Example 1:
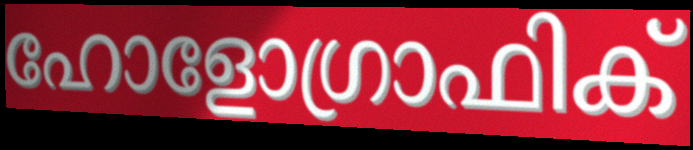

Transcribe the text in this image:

ഹോളോഗ്രാഫിക്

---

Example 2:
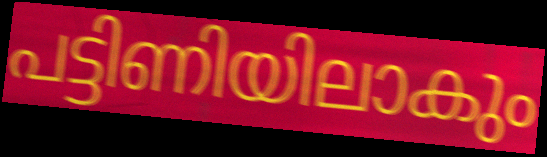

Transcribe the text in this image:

പട്ടിണിയിലാകും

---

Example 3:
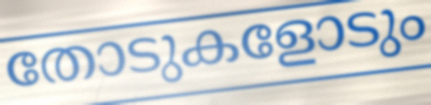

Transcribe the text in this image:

തോടുകളോടും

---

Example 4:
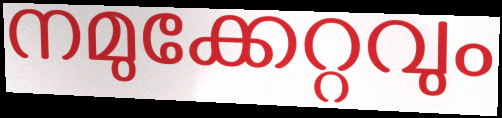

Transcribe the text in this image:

നമുക്കേറ്റവും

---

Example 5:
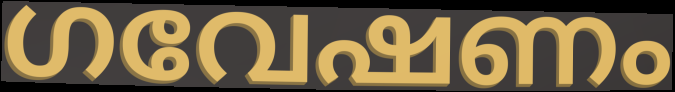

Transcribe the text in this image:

ഗവേഷണം